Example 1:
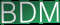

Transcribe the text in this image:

BDM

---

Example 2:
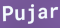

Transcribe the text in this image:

Pujar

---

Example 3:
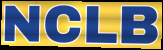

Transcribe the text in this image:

NCLB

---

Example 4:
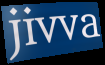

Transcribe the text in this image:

jivva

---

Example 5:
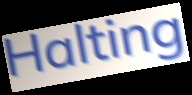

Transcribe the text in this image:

Halting